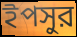
ইপসুর